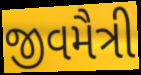
જીવમૈત્રી